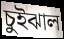
চুইঝাল